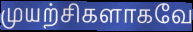
முயற்சிகளாகவே